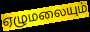
ஏழுமலையும்